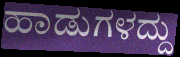
ಹಾಡುಗಳದ್ದು